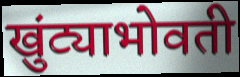
खुंट्याभोवती